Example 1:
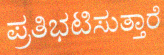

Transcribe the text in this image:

ಪ್ರತಿಭಟಿಸುತ್ತಾರೆ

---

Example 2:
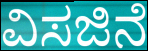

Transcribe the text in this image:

ವಿಸಜಿನೆ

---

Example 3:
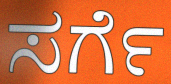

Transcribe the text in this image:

ಸರ್ಗೆ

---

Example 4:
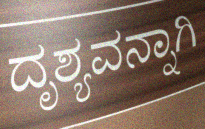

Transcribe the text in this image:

ದೃಶ್ಯವನ್ನಾಗಿ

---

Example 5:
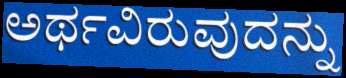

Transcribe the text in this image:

ಅರ್ಥವಿರುವುದನ್ನು